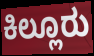
ಕಿಲ್ಲೂರು